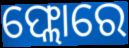
ଫ୍ଲୋରେ